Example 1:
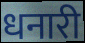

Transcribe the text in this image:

धनारी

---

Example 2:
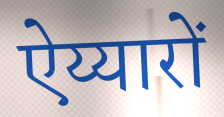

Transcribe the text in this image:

ऐय्यारों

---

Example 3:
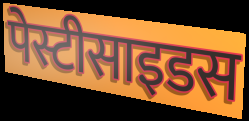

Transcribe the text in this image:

पेस्टीसाइडस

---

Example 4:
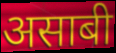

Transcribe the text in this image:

असाबी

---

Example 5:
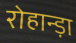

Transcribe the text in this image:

रोहान्ड़ा